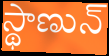
స్థాణున్